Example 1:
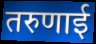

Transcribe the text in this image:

तरुणाई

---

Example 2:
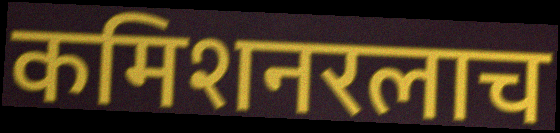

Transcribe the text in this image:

कमिशनरलाच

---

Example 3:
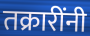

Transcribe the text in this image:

तक्रारींनी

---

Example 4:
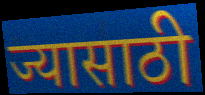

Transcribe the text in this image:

ज्यासाठी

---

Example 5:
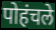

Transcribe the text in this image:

पोहंचले